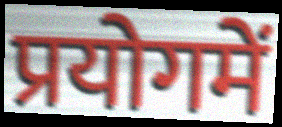
प्रयोगमें